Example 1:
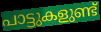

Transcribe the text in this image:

പാട്ടുകളുണ്ട്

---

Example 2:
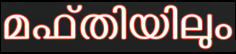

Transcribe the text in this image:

മഫ്തിയിലും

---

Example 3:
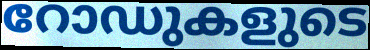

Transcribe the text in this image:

റോഡുകളുടെ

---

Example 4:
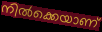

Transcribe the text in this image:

നിൽക്കെയാണ്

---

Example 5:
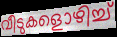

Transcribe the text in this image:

വീടുകളൊഴിച്ച്